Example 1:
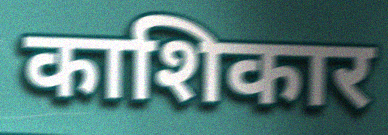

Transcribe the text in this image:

काशिकार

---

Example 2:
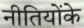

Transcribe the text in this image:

नीतियोंके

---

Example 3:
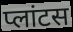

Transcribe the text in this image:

प्लांटस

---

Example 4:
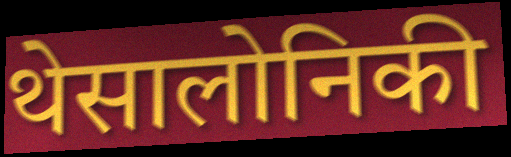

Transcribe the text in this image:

थेसालोनिकी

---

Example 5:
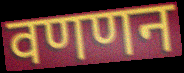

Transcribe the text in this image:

वणणन